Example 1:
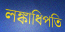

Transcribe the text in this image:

লঙ্কাধিপতি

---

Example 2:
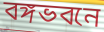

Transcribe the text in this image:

বঙ্গভবনে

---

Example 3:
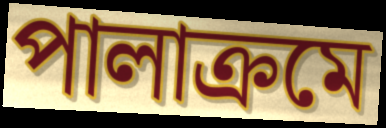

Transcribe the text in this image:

পালাক্রমে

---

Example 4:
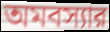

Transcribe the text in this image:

অমবস্যার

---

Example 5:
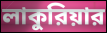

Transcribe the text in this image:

লাকুরিয়ার